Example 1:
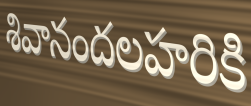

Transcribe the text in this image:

శివానందలహరికి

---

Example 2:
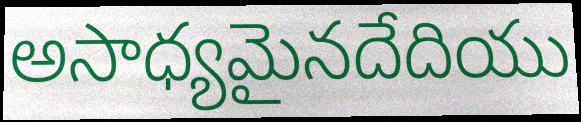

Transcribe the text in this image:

అసాధ్యమైనదేదియు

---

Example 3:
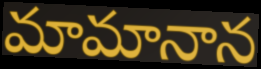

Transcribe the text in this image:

మామానాన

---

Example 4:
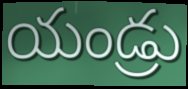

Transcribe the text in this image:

యండ్రు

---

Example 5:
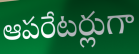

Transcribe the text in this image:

ఆపరేటర్లుగా